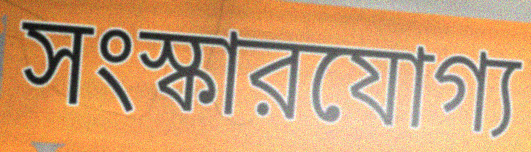
সংস্কারযোগ্য